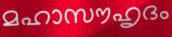
മഹാസൗഹൃദം